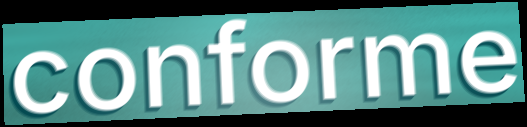
conforme